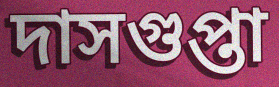
দাসগুপ্তা